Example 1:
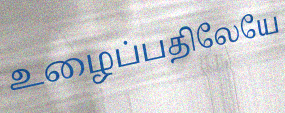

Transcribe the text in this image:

உழைப்பதிலேயே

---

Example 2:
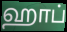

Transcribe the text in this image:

ஹாப்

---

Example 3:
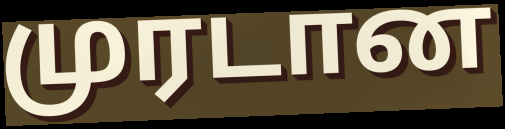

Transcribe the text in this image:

முரடான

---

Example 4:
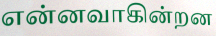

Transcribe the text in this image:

என்னவாகின்றன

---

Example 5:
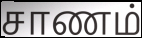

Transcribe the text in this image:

சாணம்